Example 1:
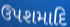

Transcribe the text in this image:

ઉપશમાદિ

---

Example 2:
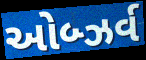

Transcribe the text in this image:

ઓબ્ઝર્વ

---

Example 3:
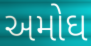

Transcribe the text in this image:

અમોઘ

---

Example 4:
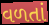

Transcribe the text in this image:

વળતાં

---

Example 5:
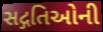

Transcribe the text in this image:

સદ્ગતિઓની